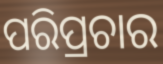
ପରିପ୍ରଚାର